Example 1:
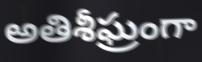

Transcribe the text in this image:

అతిశీఘ్రంగా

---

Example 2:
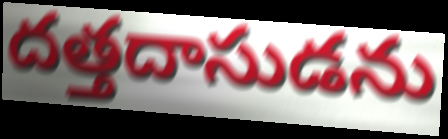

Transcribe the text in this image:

దత్తదాసుడను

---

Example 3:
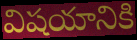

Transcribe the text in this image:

విషయానికి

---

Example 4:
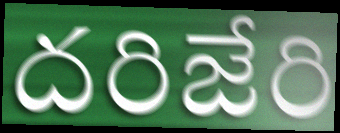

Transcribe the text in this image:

దరిజేరి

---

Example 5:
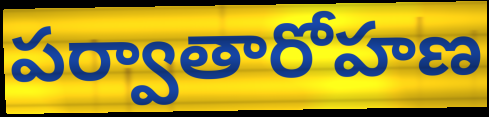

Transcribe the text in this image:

పర్వాతారోహణ